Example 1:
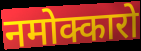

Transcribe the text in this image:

नमोक्कारो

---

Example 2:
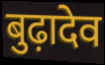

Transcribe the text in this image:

बुढ़ादेव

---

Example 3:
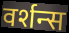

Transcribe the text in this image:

वर्शन्स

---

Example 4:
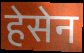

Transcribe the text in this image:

हेसेन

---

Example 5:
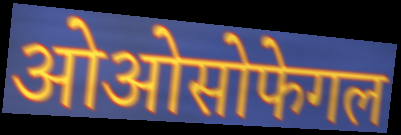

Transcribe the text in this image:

ओओसोफेगल